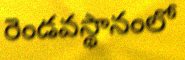
రెండవస్థానంలో